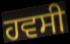
ਹਵਸੀ